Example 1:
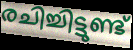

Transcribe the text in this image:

രചിച്ചിട്ടുണ്ട്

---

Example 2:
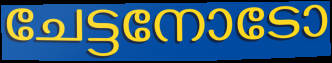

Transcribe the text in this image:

ചേട്ടനോടോ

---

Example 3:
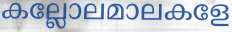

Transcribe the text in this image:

കല്ലോലമാലകളേ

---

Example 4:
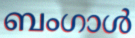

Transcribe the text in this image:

ബംഗാൾ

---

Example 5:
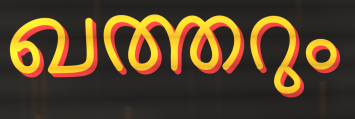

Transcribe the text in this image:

ഖത്തറും